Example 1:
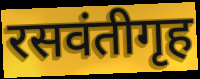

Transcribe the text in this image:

रसवंतीगृह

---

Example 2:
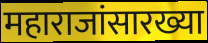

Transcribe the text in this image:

महाराजांसारख्या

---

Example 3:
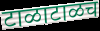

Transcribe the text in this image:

टाळाटाळच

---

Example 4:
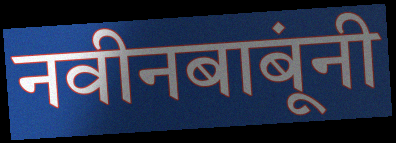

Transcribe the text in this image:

नवीनबाबूंनी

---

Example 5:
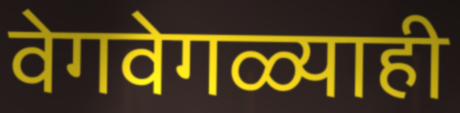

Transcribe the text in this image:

वेगवेगळ्याही